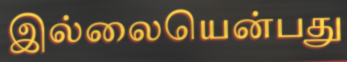
இல்லையென்பது